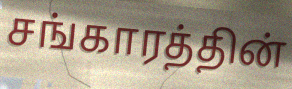
சங்காரத்தின்